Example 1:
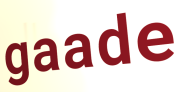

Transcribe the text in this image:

gaade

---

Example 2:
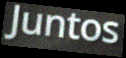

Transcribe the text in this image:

Juntos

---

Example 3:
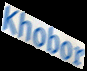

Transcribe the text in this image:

Khobor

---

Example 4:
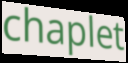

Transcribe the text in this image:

chaplet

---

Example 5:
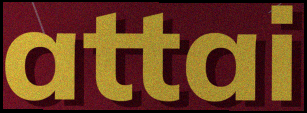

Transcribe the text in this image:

attai